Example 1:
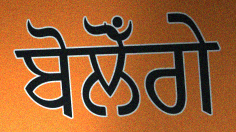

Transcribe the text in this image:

ਬੋਲੋਁਗੇ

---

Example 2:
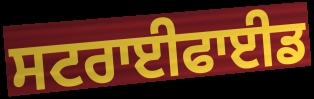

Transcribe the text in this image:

ਸਟਰਾਈਫਾਈਡ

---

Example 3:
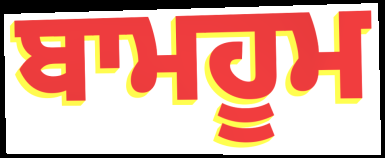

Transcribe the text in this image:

ਬਾਮਹੂਮ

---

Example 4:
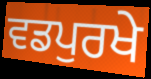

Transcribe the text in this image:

ਵਡਪੁਰਖੇ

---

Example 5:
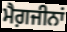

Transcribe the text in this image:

ਮੈਗ਼ਜੀਨਾਂ